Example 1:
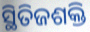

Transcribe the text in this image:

ସ୍ଥିତିଜଶକ୍ତି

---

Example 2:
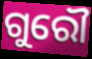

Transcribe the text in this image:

ଗୁରୌ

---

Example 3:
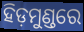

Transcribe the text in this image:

ହିଡ଼ମୁଣ୍ଡରେ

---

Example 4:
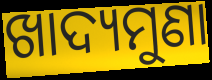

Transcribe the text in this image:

ଖାଦ୍ୟମୁଣା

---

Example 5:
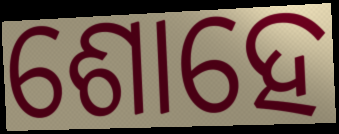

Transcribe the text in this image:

ଶୋହେ